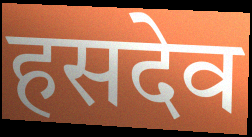
हसदेव